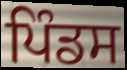
ਪਿੰਡਸ